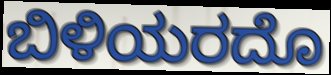
ಬಿಳಿಯರದೊ